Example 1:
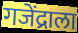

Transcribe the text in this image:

गजेंद्राला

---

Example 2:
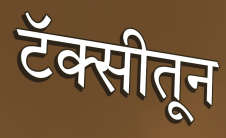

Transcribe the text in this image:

टॅक्‍सीतून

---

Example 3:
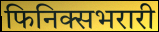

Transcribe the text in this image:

फिनिक्सभरारी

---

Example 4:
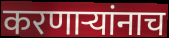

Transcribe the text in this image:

करणार्‍यांनाच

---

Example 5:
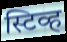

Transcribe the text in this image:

स्टिव्ह